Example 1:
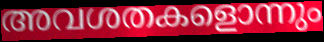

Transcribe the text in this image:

അവശതകളൊന്നും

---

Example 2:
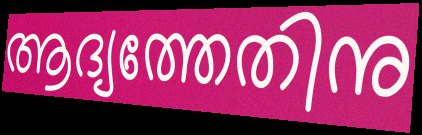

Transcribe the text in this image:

ആദ്യത്തേതിനു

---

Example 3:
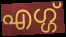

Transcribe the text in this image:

എഗ്ഗ്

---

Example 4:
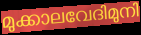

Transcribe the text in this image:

മുക്കാലവേദിമുനി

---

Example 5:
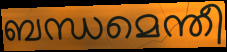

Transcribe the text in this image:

ബന്ധമെന്തീ